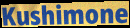
Kushimone